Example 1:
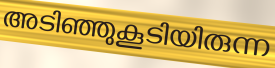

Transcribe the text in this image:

അടിഞ്ഞുകൂടിയിരുന്ന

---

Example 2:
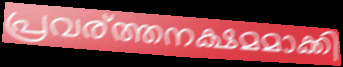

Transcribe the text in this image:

പ്രവര്ത്തനക്ഷമമാക്കി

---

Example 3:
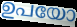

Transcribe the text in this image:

ഉപയോ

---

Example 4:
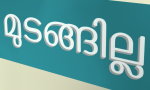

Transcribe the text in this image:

മുടങ്ങില്ല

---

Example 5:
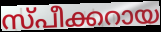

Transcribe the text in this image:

സ്പീക്കറായ